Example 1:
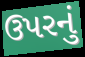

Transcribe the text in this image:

ઉપરનું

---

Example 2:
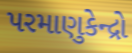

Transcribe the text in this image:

પરમાણુકેન્દ્રો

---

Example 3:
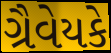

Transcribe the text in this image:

ગ્રૈવેયકે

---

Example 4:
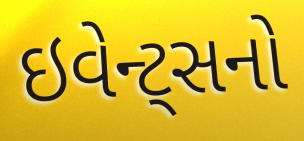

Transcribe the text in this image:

ઇવેન્ટ્સનો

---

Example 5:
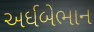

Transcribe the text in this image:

અર્ધબેભાન